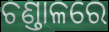
ଚଣ୍ଡାଳରେ